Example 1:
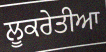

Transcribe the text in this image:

ਲੂਕਰੇਤੀਆ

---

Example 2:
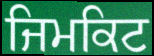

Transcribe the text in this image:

ਜਿਮਕਿਟ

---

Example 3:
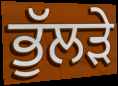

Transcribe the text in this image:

ਭੁੱਲੜੇ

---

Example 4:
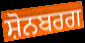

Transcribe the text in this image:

ਸ਼ੋਨਬਰਗ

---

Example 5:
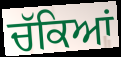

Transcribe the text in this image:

ਚੱਕਿਆਂ